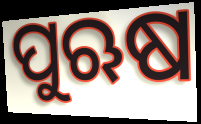
ପୁଋଷ